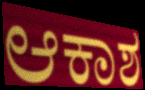
ಆಕಾಶ